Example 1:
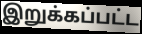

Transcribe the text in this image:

இறுக்கப்பட்ட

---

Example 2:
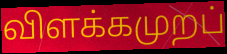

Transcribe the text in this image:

விளக்கமுறப்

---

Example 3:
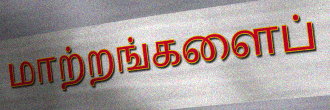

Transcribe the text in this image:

மாற்றங்களைப்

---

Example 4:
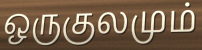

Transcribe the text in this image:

ஒருகுலமும்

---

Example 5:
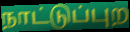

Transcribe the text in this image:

நாட்டுப்புற